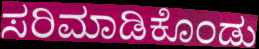
ಸರಿಮಾಡಿಕೊಂಡು